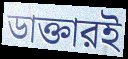
ডাক্তারই